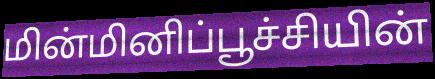
மின்மினிப்பூச்சியின்